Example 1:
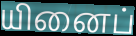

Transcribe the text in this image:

யினைப்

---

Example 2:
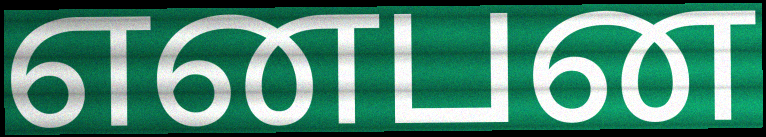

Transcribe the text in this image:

எனபன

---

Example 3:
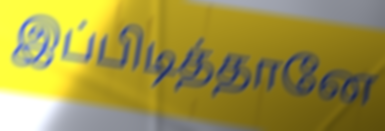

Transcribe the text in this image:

இப்பிடித்தானே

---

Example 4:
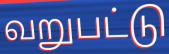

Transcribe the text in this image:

வறுபட்டு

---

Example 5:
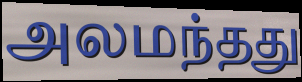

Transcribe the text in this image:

அலமந்தது